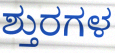
ಶ್ತುರಗಳ